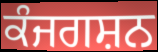
ਕੰਜਗਸ਼ਨ